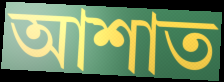
আশাত